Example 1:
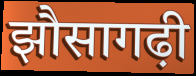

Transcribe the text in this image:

झौसागढ़ी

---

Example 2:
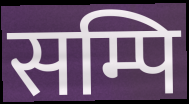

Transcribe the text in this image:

सम्पि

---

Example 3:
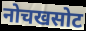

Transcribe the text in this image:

नोचखसोट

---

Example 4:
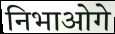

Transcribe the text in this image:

निभाओगे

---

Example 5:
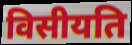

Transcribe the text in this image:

विसीयति